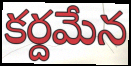
కర్దమేన